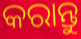
କରାନ୍ତୁ